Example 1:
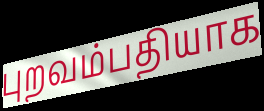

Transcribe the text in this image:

புறவம்பதியாக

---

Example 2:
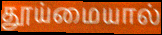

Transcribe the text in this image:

தூய்மையால்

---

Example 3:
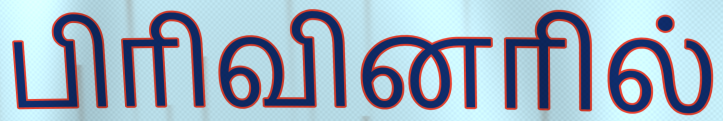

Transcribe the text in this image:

பிரிவினரில்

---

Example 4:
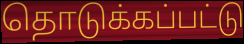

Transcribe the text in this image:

தொடுக்கப்பட்டு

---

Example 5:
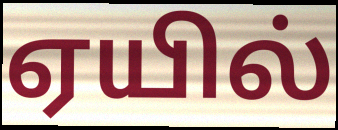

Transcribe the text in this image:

ஏயில்